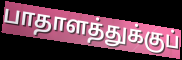
பாதாளத்துக்குப்